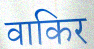
वाकिर